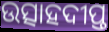
ଉତ୍ସାହଦୀପ୍ତ